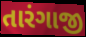
તારંગાજી